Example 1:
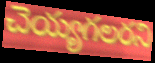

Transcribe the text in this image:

చెయ్యగలరని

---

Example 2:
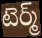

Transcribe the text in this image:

టెర్మ్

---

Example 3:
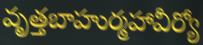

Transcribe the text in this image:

వృత్తబాహుర్మహావీర్యో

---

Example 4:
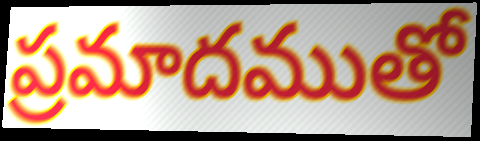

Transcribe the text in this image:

ప్రమాదముతో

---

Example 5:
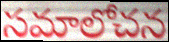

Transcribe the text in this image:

సమాలోచన